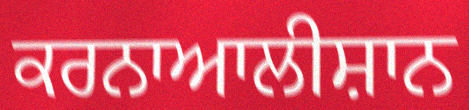
ਕਰਨਾਆਲੀਸ਼ਾਨ